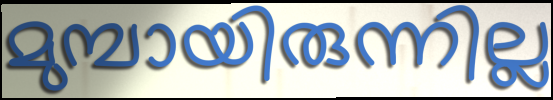
മുമ്പായിരുന്നില്ല